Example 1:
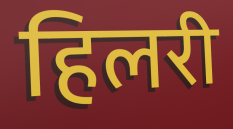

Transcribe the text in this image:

हिलरी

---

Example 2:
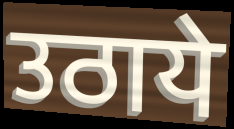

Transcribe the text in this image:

उठाये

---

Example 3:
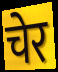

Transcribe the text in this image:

चेर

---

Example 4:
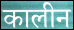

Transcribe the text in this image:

कालीन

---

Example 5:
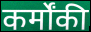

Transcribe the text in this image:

कर्मोंकी